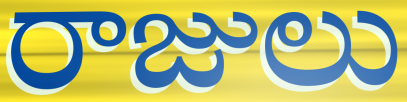
రాజులు